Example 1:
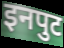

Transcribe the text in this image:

इनपुट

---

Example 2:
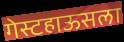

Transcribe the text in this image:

गेस्टहाऊसला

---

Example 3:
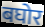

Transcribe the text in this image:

बघोर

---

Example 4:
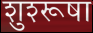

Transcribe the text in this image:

शुश्रूषा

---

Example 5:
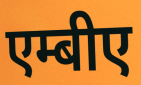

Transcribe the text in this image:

एम्बीए